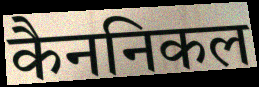
कैननिकल